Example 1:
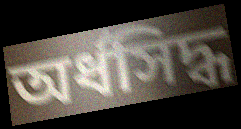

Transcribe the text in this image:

অর্ধসিদ্ধ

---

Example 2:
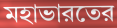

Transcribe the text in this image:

মহাভারতের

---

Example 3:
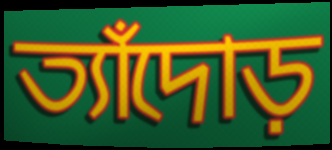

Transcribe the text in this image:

ত্যাঁদোড়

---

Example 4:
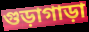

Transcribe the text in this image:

গুড়াগাড়া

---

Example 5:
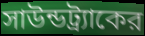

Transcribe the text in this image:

সাউন্ডট্র্যাকের